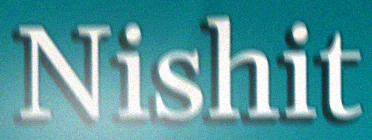
Nishit